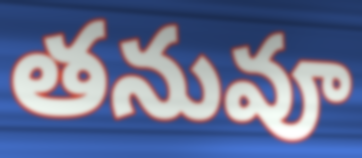
తనువూ